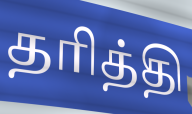
தரித்தி